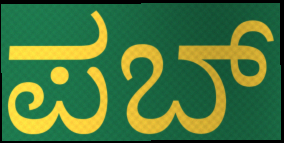
ಪಬ್